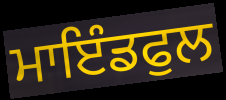
ਮਾਇੰਡਫੁਲ